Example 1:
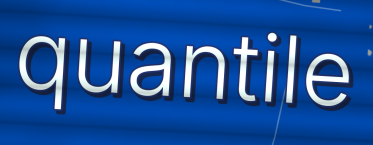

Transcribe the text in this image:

quantile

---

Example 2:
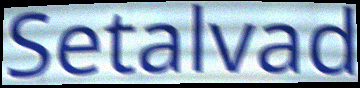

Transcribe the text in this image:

Setalvad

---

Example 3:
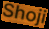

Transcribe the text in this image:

Shoji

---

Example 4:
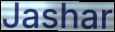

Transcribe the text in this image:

Jashar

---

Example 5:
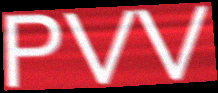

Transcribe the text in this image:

PVV